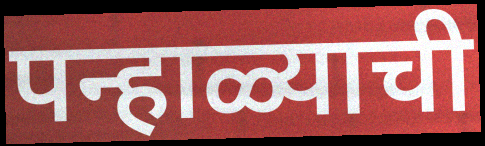
पन्हाळ्याची